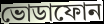
ভোডাফোন